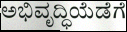
ಅಭಿವೃದ್ಧಿಯೆಡೆಗೆ